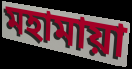
মহামায়া